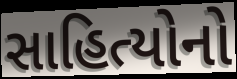
સાહિત્યોનો